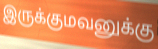
இருக்குமவனுக்கு